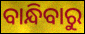
ବାନ୍ଧିବାରୁ